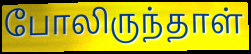
போலிருந்தாள்